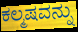
ಕಲ್ಮಷವನ್ನು